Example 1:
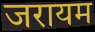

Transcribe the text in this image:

जरायम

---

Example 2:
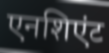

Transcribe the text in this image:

एनशिएंट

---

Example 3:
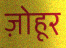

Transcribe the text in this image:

ज़ोहूर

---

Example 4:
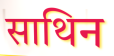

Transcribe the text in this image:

साथिन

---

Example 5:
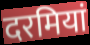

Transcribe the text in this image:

दरमियां